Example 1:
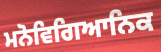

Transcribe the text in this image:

ਮਨੋਵਿਗਿਆਨਿਕ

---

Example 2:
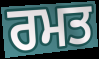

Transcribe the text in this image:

ਰਮਤ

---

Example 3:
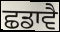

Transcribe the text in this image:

ਛਡਾਵੈ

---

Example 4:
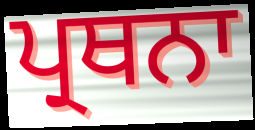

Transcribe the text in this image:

ਪ੍ਰਥਨਾ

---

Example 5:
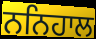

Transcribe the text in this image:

ਨਨਿਹਾਲ